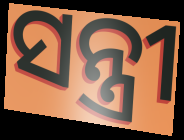
ସନ୍ତ୍ରୀ